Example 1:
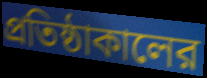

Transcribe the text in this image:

প্রতিষ্ঠাকালের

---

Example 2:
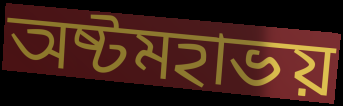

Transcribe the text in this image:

অষ্টমহাভয়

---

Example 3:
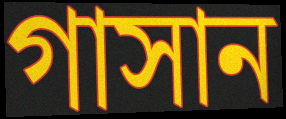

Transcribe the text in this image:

গাসান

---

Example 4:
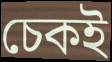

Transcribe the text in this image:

চেকই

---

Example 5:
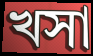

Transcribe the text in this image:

খসা